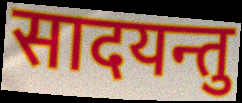
सादयन्तु